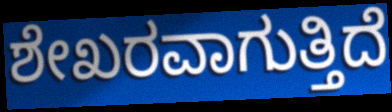
ಶೇಖರವಾಗುತ್ತಿದೆ